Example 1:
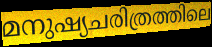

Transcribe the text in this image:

മനുഷ്യചരിത്രത്തിലെ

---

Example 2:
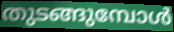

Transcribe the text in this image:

തുടങ്ങുമ്പോൾ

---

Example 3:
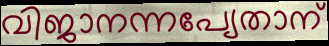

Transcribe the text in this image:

വിജാനന്നപ്യേതാന്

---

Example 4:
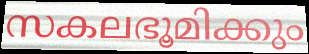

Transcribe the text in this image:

സകലഭൂമിക്കും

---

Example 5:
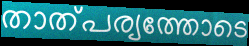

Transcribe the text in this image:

താത്പര്യത്തോടെ